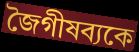
জৈগীষব্যকে